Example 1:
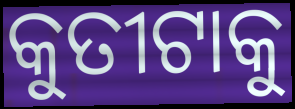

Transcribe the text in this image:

କୁତୀଟାକୁ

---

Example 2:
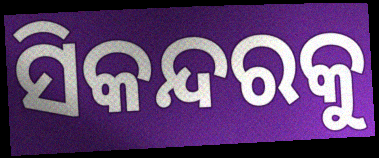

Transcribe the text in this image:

ସିକନ୍ଦରକୁ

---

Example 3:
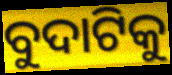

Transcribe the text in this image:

ବୁଦାଟିକୁ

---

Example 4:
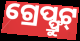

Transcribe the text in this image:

ଗ୍ରେପ୍ଫ୍ରୁଟ୍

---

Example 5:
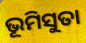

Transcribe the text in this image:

ଭୂମିସୁତା